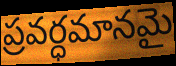
ప్రవర్ధమానమై